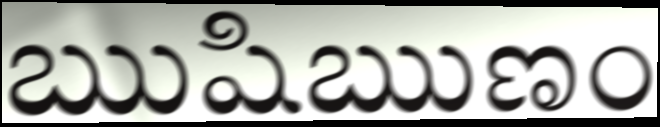
ఋషిఋణం